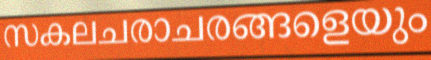
സകലചരാചരങ്ങളെയും